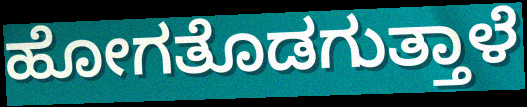
ಹೋಗತೊಡಗುತ್ತಾಳೆ